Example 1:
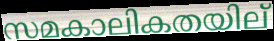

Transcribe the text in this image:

സമകാലികതയില്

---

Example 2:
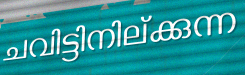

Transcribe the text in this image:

ചവിട്ടിനില്ക്കുന്ന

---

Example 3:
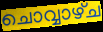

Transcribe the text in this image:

ചൊവ്വാഴ്‌ച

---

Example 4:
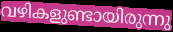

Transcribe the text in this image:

വഴികളുണ്ടായിരുന്നു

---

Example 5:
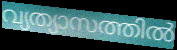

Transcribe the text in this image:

വ്യത്യാസത്തിൽ